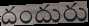
దందురు